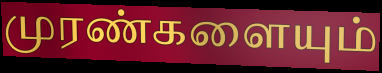
முரண்களையும்